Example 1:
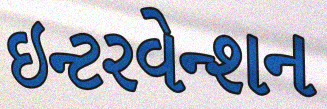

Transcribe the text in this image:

ઇન્ટરવેન્શન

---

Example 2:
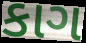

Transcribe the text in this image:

કાગ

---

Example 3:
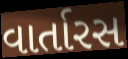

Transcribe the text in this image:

વાર્તારસ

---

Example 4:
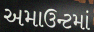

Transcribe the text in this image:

અમાઉન્ટમાં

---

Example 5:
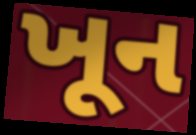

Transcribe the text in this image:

ખૂન